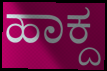
ಹಾಕ್ದ